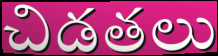
చిడతలు